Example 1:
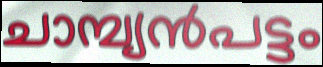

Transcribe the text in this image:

ചാമ്പ്യൻപട്ടം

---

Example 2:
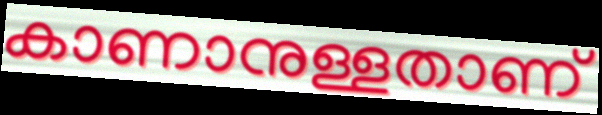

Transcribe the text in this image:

കാണാനുള്ളതാണ്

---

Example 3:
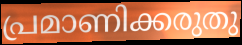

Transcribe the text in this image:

പ്രമാണിക്കരുതു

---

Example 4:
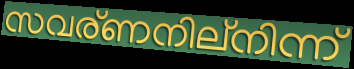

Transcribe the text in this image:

സവര്ണനില്നിന്ന്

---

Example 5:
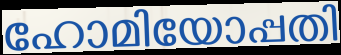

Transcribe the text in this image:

ഹോമിയോപ്പതി